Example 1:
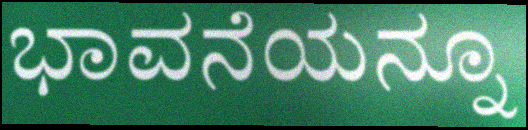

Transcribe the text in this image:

ಭಾವನೆಯನ್ನೂ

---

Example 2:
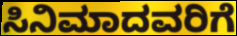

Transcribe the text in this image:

ಸಿನಿಮಾದವರಿಗೆ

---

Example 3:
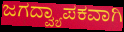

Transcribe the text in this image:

ಜಗದ್ವ್ಯಾಪಕವಾಗಿ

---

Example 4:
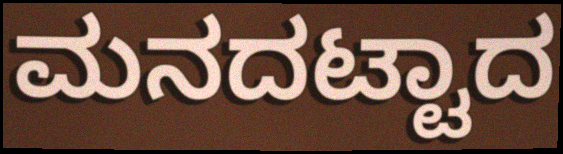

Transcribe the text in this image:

ಮನದಟ್ಟಾದ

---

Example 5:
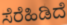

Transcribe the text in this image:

ಸೆರೆಹಿಡಿದೆ